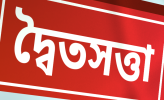
দ্বৈতসত্তা